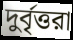
দুর্বৃত্তরা